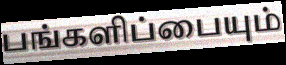
பங்களிப்பையும்